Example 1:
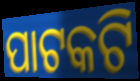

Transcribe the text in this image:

ପାଟକଟି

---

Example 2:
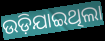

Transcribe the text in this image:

ଉଡ଼ିଯାଇଥିଲା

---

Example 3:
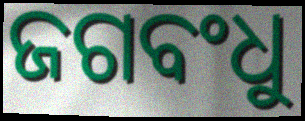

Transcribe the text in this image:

ଜଗବଂଧୁ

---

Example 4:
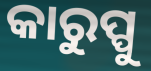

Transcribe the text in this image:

କାରୁପ୍ପୁ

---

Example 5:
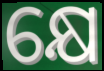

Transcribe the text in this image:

କ୍ଷେ